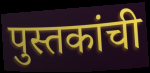
पुस्तकांची